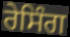
ਰੇਸਿੰਗ